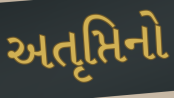
અતૃપ્તિનો